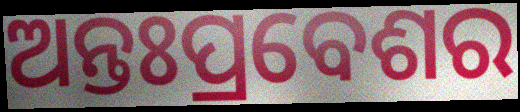
ଅନ୍ତଃପ୍ରବେଶର